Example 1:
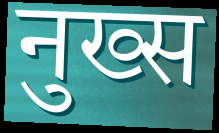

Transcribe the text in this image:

नुख्स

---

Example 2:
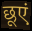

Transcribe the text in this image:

छूएं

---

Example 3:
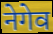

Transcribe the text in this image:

नेगेव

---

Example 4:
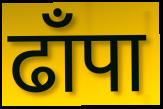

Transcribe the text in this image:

ढाँपा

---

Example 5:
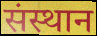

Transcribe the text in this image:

संस्‍थान